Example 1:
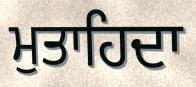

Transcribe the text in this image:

ਮੁਤਾਹਿਦਾ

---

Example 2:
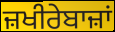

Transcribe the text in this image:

ਜ਼ਖੀਰੇਬਾਜ਼ਾਂ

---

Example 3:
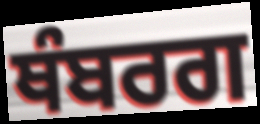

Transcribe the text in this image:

ਥੰਬਰਗ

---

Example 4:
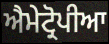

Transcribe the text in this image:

ਐਮੇਟ੍ਰੋਪੀਆ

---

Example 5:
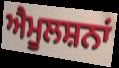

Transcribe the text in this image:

ਐਮੂਲਸ਼ਨਾਂ